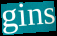
gins